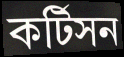
কর্টিসন